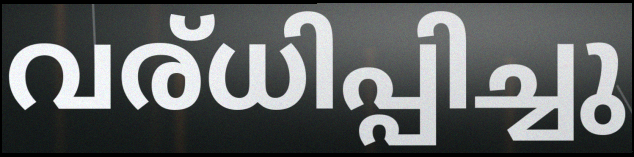
വര്ധിപ്പിച്ചു